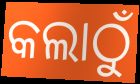
କଲାଠୁଁ